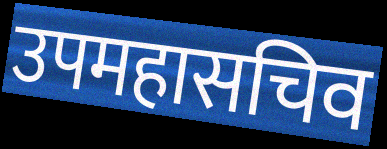
उपमहासचिव